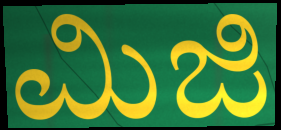
ಮಿಜಿ